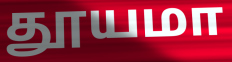
தூயமா